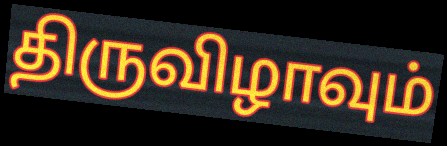
திருவிழாவும்